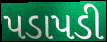
પડાપડી